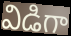
విడిగా